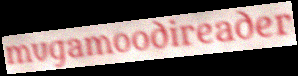
mugamoodireader